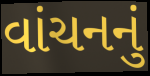
વાંચનનું